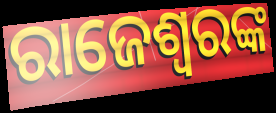
ରାଜେଶ୍ୱରଙ୍କ